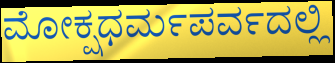
ಮೋಕ್ಷಧರ್ಮಪರ್ವದಲ್ಲಿ